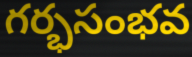
గర్భసంభవ